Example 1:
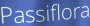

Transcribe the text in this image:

Passiflora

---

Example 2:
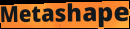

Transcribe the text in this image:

Metashape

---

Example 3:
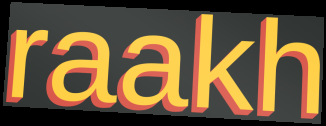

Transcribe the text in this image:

raakh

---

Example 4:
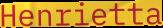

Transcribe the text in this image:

Henrietta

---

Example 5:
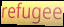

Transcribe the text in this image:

refugee